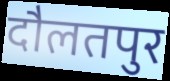
दौलतपुर